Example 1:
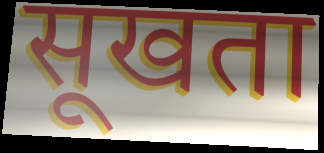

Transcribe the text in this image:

सूखता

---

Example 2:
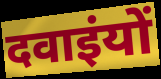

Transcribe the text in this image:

दवाइंयों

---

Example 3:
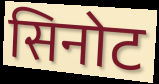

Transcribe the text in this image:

सिनोट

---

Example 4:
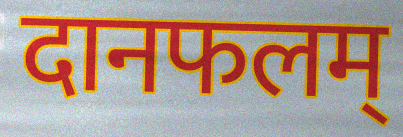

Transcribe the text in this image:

दानफलम्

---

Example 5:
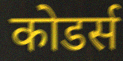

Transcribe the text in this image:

कोडर्स